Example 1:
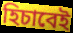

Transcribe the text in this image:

হিচাবেই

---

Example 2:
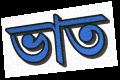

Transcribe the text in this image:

ভাত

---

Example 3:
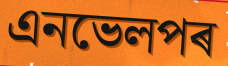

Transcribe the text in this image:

এনভেলপৰ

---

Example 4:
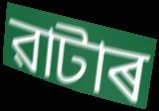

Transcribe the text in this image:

ৱাটাৰ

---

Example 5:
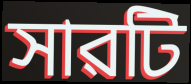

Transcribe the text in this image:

সাৱটি